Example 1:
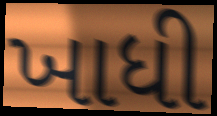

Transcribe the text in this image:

ખાધી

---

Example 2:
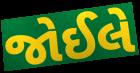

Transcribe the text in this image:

જોઈલે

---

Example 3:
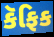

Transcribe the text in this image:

કૅફિક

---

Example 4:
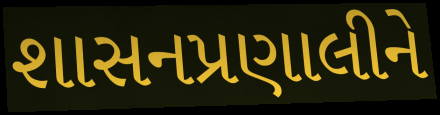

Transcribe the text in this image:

શાસનપ્રણાલીને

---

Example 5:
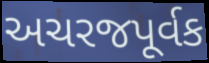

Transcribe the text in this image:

અચરજપૂર્વક